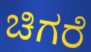
ಚಿಗರೆ